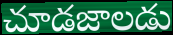
చూడజాలడు